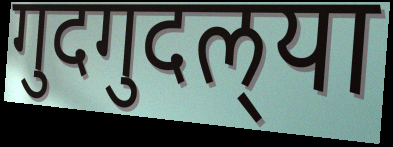
गुदगुदल्या